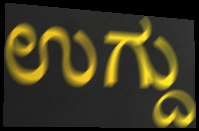
ಉಗ್ದು